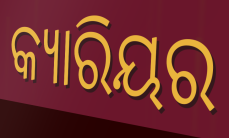
କ୍ୟାରିୟର